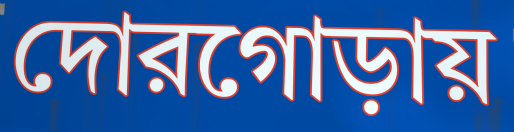
দোরগোড়ায়